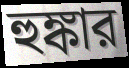
হুঙ্কার